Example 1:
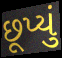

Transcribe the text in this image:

છૂપ્યું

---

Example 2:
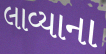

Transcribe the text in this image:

લાવ્યાના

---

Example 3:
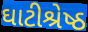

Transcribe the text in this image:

ઘાટીશ્રેષ્ઠ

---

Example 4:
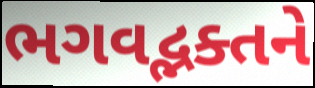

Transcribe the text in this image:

ભગવદ્ભક્તને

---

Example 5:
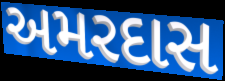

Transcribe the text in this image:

અમરદાસ